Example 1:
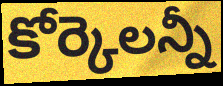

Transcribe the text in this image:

కోర్కెలన్నీ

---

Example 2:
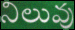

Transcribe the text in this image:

నిలువు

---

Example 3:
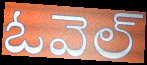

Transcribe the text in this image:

ఓవెల్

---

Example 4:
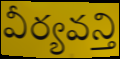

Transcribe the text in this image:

వీర్యవన్తి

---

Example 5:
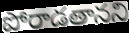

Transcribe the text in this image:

పోరాడతానని